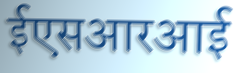
ईएसआरआई